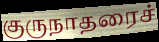
குருநாதரைச்